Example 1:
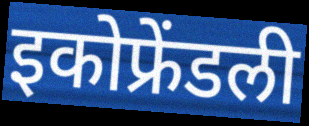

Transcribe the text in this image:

इकोफ्रेंडली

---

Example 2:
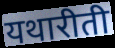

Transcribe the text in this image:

यथारीती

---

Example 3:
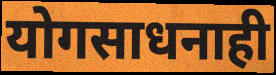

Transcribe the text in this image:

योगसाधनाही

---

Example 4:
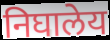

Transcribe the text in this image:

निघालेय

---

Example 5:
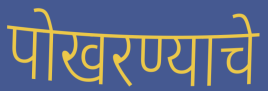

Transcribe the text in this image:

पोखरण्याचे